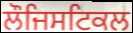
ਲੌਜਿਸਟਿਕਲ